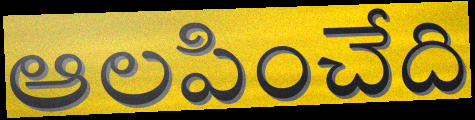
ఆలపించేది